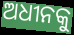
ଅଧୀନକୁ